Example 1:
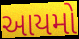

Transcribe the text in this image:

આયમો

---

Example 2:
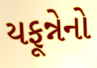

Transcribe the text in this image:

યફૂન્નેનો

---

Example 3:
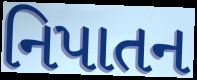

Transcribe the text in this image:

નિપાતન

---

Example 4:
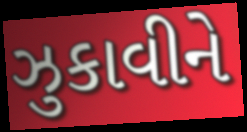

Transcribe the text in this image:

ઝુકાવીને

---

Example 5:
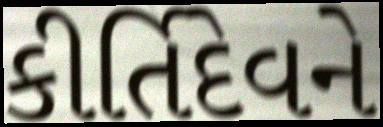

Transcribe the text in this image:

કીર્તિદેવને